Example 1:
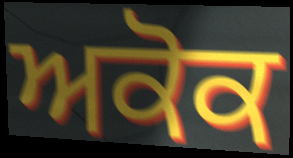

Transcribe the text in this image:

ਅਕੋਕ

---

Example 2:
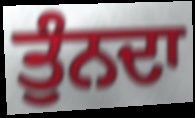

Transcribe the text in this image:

ਤੁੰਨਦਾ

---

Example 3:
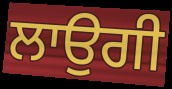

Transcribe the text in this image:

ਲਾਉਗੀ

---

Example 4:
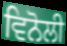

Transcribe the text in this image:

ਵਿਨੋਲੀ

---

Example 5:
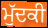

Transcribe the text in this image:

ਮੁੱਦਕੀ